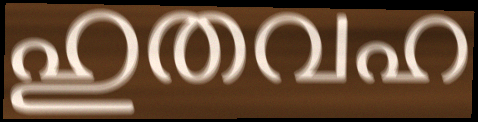
ഹുതവഹ